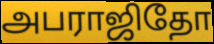
அபராஜிதோ